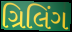
ગ્રિલિંગ